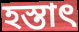
হস্তাৎ